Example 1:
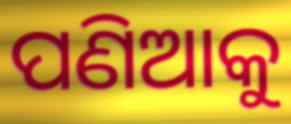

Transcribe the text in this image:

ପଣିଆକୁ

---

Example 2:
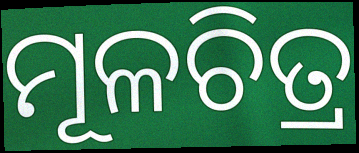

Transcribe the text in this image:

ମୂଳଚିତ୍ର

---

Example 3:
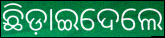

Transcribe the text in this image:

ଛିଡ଼ାଇଦେଲେ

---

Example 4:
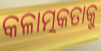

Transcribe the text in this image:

କଳାତ୍ମକତାକୁ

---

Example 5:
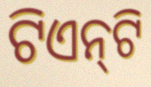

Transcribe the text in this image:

ଟିଏନ୍‌ଟି